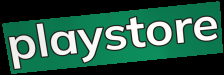
playstore